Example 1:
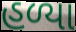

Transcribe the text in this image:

હળ્યા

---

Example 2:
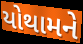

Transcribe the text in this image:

યોથામને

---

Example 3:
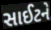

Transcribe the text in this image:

સાઈટને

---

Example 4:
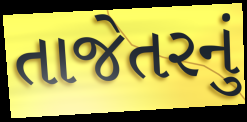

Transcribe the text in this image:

તાજેતરનું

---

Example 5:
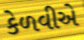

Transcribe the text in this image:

કેળવીએ